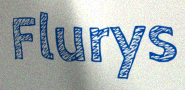
Flurys